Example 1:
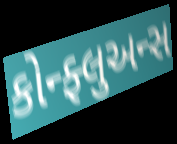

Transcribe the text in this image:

કોન્ફ્લુઅન્સ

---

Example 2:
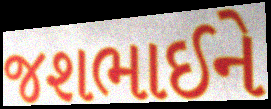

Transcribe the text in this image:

જશભાઈને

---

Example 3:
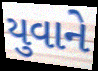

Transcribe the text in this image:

યુવાને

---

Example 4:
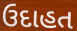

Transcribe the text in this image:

ઉદાહત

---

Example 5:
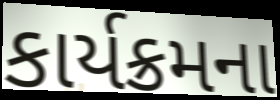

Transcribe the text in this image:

કાર્યક્રમના